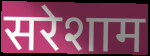
सरेशाम